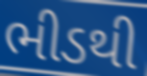
ભીડથી